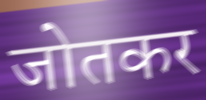
जोतकर